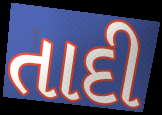
તાદી